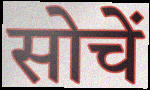
सोचें